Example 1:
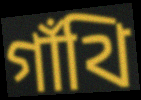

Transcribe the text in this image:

গাঁথি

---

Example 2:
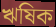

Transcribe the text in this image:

ঋষিক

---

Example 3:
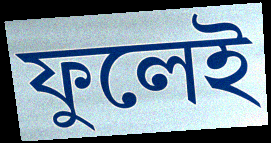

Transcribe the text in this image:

ফুলেই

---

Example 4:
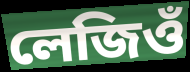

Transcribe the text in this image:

লেজিওঁ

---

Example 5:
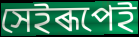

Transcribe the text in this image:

সেইৰূপেই